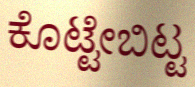
ಕೊಟ್ಟೇಬಿಟ್ಟ